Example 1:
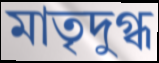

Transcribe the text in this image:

মাতৃদুগ্ধ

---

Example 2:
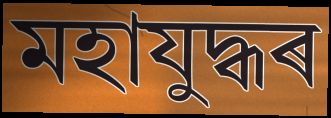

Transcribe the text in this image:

মহাযুদ্ধৰ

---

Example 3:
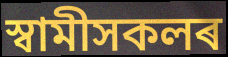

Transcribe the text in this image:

স্বামীসকলৰ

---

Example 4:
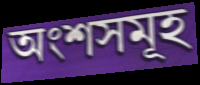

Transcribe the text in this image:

অংশসমূহ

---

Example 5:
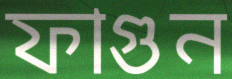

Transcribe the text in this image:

ফাগুন